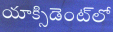
యాక్సిడెంట్‌లో